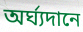
অর্ঘ্যদানে